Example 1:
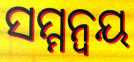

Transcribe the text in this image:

ସମ୍ମନ୍ୱୟ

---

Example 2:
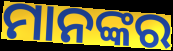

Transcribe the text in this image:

ମାନଙ୍କର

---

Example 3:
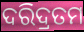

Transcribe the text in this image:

ଦରିଦ୍ରତମ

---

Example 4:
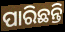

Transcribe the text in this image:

ପାରିଛନ୍ତି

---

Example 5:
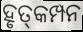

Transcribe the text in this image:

ହୃତ୍‌କମ୍ପନ